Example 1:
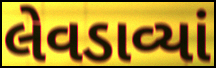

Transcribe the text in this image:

લેવડાવ્યાં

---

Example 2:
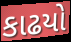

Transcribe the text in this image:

કાઢયો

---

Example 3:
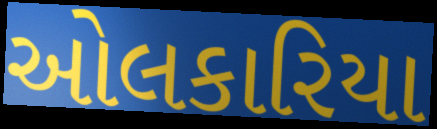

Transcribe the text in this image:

ઓલકારિયા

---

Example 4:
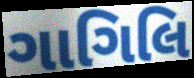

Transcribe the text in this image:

ગાગિલિ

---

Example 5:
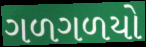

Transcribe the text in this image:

ગળગળયો